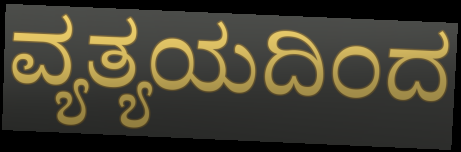
ವ್ಯತ್ಯಯದಿಂದ